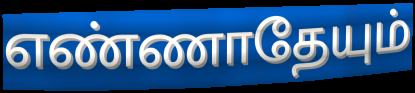
எண்ணாதேயும்